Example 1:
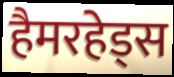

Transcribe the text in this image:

हैमरहेड्स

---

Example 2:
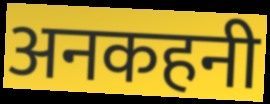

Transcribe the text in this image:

अनकहनी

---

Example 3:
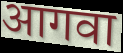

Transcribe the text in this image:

आगवा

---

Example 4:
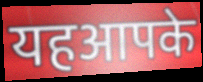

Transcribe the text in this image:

यहआपके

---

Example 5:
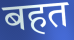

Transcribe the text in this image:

बहत